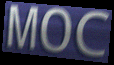
MOC